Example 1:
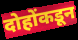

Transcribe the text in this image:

दोहोंकडून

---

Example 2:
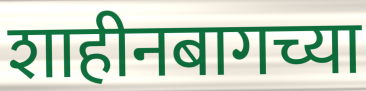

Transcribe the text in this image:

शाहीनबागच्या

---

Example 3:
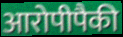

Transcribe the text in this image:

आरोपीपैकी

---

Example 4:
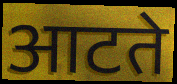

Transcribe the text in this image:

आटते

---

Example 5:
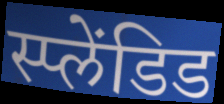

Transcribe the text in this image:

स्प्लेंडिड